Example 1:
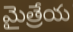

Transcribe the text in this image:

మైత్రేయ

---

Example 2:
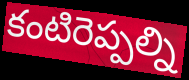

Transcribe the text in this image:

కంటిరెప్పల్ని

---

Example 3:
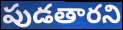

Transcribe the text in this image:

పుడతారని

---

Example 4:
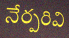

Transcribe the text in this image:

నేర్పరివి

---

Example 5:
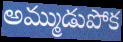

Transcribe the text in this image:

అమ్ముడుపోక